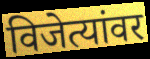
विजेत्यांवर